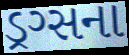
ડ્રગ્સના